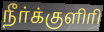
நீர்க்குளிரி